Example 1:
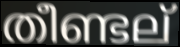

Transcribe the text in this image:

തീണ്ടല്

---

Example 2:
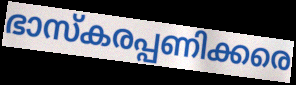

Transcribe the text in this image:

ഭാസ്കരപ്പണിക്കരെ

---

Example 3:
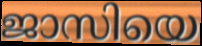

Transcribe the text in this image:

ജാസിയെ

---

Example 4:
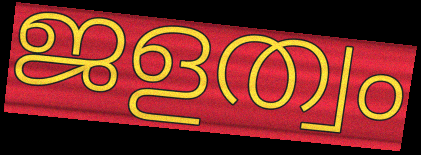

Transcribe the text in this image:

ജളത്വം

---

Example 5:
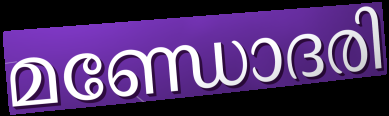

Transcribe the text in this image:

മണ്ഡോദരി